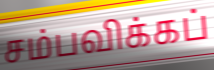
சம்பவிக்கப்